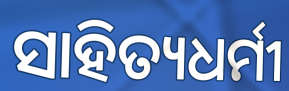
ସାହିତ୍ୟଧର୍ମୀ